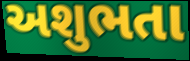
અશુભતા